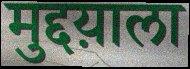
मुद्दय़ाला